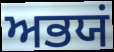
ਅਭਯਂ